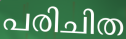
പരിചിത